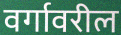
वर्गावरील